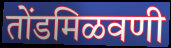
तोंडमिळवणी